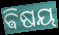
ଵିଷୟ